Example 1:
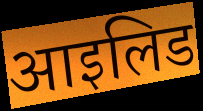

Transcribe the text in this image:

आइलिड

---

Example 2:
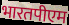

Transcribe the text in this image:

भारतपीएम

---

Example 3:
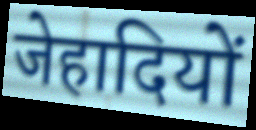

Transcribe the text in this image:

जेहादियों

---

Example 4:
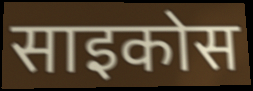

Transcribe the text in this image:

साइकोस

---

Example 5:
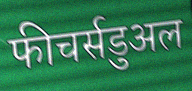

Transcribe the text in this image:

फीचर्सडुअल